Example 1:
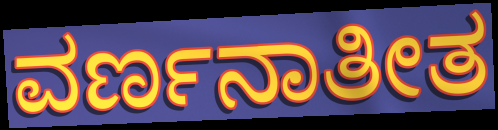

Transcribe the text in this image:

ವರ್ಣನಾತೀತ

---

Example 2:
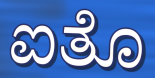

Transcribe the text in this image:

ಐತೊ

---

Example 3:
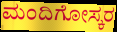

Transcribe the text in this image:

ಮಂದಿಗೋಸ್ಕರ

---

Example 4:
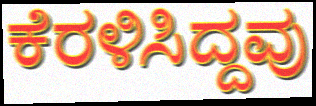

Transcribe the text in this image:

ಕೆರಳಿಸಿದ್ದವು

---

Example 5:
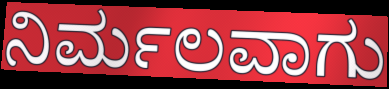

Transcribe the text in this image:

ನಿರ್ಮಲವಾಗು